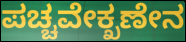
ಪಚ್ಚವೇಕ್ಖಣೇನ